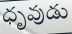
ధృవుడు